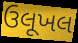
ઉલૂખલ